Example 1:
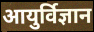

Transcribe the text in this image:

आयुर्विज्ञान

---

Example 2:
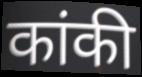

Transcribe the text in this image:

कांकी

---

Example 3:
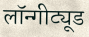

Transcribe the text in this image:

लॉन्गीट्यूड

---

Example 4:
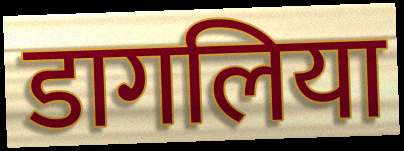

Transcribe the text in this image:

डागलिया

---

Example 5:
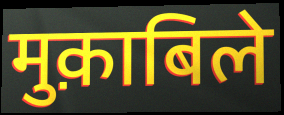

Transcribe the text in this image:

मुक़ाबिले